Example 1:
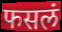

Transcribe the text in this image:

फसलं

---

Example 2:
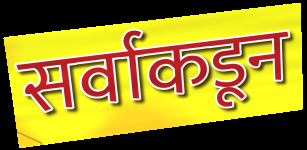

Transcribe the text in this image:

सर्वाकडून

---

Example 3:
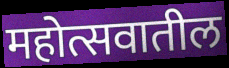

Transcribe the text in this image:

महोत्सवातील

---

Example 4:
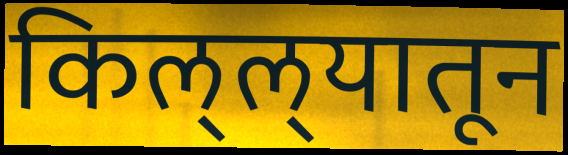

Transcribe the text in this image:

किल्ल्यातून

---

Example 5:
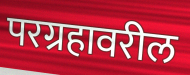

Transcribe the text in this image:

परग्रहावरील